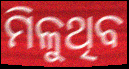
ମିଳୁଥିବ